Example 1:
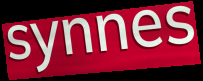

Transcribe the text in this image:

synnes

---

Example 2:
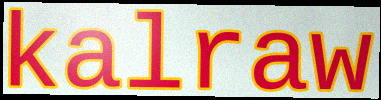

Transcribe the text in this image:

kalraw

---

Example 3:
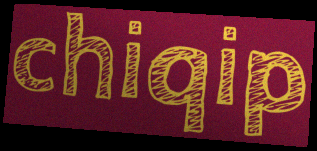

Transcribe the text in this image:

chiqip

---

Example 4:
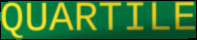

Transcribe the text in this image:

QUARTILE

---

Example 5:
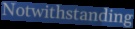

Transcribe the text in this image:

Notwithstanding